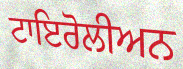
ਟਾਇਰੋਲੀਅਨ